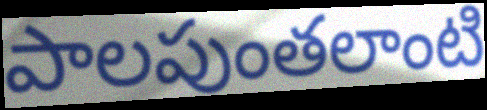
పాలపుంతలాంటి